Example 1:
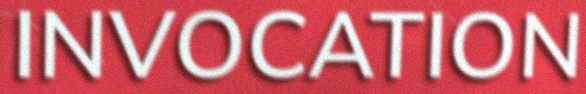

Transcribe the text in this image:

INVOCATION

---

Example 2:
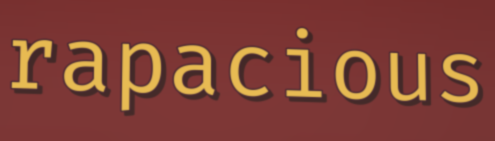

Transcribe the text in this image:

rapacious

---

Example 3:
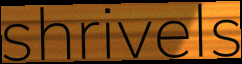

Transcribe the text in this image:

shrivels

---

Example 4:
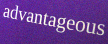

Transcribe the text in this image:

advantageous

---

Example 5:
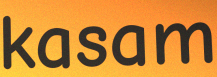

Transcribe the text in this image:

kasam